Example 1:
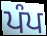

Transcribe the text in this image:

ਪੰਪ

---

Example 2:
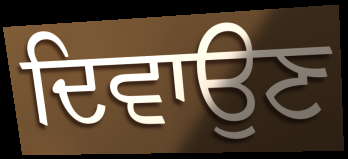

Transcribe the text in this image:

ਦਿਵਾਉਣ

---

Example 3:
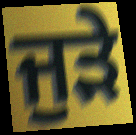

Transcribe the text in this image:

ਜੁੜੇ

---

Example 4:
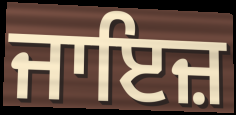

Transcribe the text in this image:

ਜਾਇਜ਼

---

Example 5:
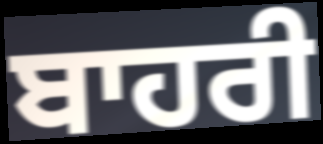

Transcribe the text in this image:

ਬਾਹਰੀ